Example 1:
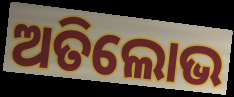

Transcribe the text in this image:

ଅତିଲୋଭ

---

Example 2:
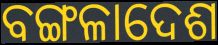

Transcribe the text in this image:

ବଙ୍ଗଳାଦେଶ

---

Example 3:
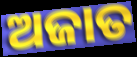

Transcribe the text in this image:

ଅଜାତ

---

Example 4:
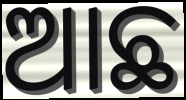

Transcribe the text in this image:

ଆଛ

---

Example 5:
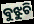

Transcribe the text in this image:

ବୁଝୁଚି